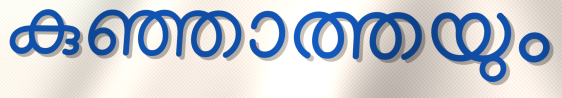
കുഞ്ഞാത്തയും